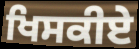
ਖਿਸਕੀਏ